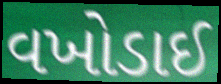
વખોડાઈ